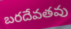
బరదేవతవు